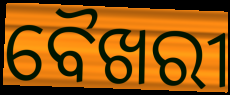
ବୈଖରୀ